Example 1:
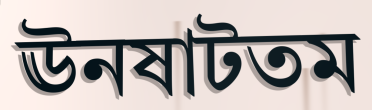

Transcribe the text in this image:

ঊনষাটতম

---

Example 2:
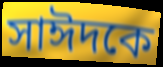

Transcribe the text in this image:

সাঈদকে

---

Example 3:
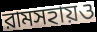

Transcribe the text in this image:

রামসহায়ও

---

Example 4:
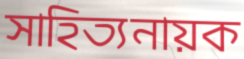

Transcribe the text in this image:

সাহিত্যনায়ক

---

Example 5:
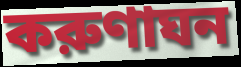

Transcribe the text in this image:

করুণাঘন